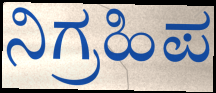
ನಿಗ್ರಹಿಪ